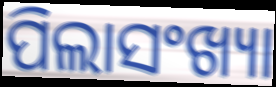
ପିଲାସଂଖ୍ୟା